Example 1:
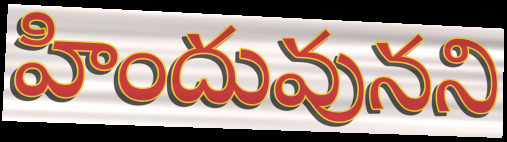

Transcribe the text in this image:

హిందువునని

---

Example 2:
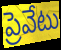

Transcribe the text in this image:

ప్రెవేటు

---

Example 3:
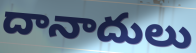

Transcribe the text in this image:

దానాదులు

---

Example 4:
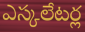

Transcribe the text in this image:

ఎస్కలేటర్ల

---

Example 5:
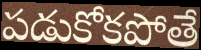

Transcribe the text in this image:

పడుకోకపోతే